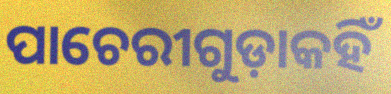
ପାଚେରୀଗୁଡ଼ାକହିଁ